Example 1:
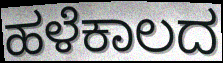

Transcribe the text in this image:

ಹಳೆಕಾಲದ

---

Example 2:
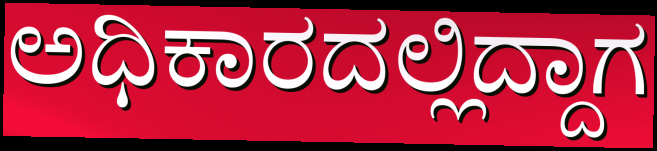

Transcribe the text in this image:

ಅಧಿಕಾರದಲ್ಲಿದ್ದಾಗ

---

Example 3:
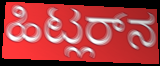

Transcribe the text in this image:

ಹಿಟ್ಲರ್‌ನ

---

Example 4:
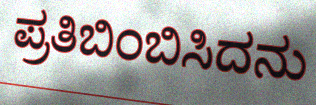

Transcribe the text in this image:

ಪ್ರತಿಬಿಂಬಿಸಿದನು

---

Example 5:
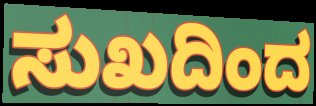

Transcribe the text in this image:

ಸುಖದಿಂದ